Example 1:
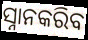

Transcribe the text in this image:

ସ୍ନାନକରିବ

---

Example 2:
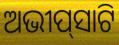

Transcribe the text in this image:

ଅଭୀପ୍‌ସାଟି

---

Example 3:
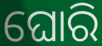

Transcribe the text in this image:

ଘୋରି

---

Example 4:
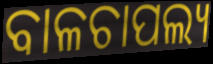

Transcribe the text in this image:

ବାଳଚାପଲ୍ୟ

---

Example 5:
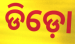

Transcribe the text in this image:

ଡିଡ଼ୋ